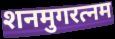
शनमुगरत्नम